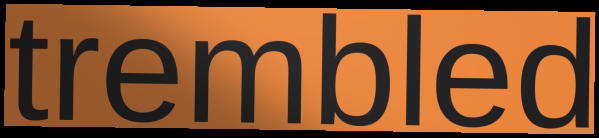
trembled